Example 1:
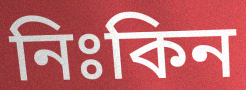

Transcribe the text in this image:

নিঃকিন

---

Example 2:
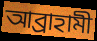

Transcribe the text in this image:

আব্ৰাহামী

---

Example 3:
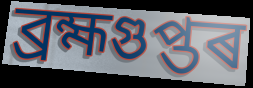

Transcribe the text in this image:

ব্ৰহ্মগুপ্তৰ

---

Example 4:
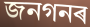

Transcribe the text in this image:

জনগনৰ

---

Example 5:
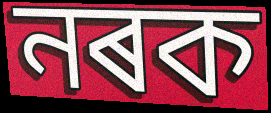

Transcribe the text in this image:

নৰক